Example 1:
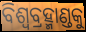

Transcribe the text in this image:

ବିଶ୍ବବ୍ରହ୍ମାଣ୍ଡକୁ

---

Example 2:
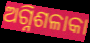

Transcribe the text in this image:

ଅଗ୍ନିଶଳାକା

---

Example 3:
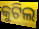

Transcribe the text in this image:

କୁଟିଲ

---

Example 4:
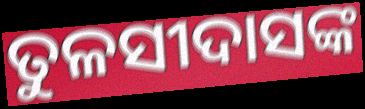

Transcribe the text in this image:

ତୁଳସୀଦାସଙ୍କ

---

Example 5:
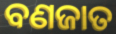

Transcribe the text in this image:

ବଣଜାତ